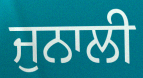
ਜੁਨਾਲੀ